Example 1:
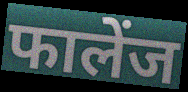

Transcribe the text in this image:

फालेंज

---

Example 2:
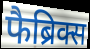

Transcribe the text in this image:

फैब्रिक्स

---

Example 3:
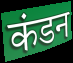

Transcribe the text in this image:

कंडन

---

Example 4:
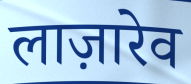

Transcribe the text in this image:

लाज़ारेव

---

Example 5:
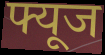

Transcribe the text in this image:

फ्यूज